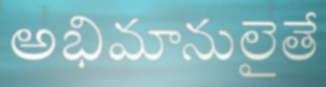
అభిమానులైతే